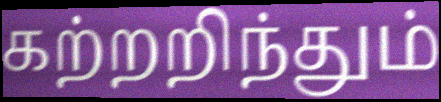
கற்றறிந்தும்